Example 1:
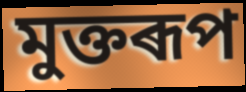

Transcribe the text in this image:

মুক্তৰূপ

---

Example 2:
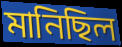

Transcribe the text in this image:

মানিছিল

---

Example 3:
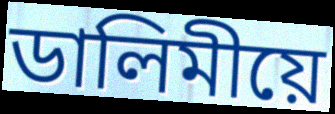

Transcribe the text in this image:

ডালিমীয়ে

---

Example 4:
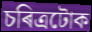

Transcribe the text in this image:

চৰিত্ৰটোক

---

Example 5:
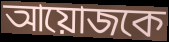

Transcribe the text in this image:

আয়োজকে